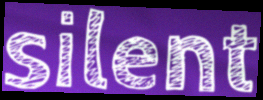
silent